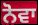
ਨੋਵਾ